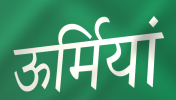
ऊर्मियां